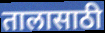
तालासाठी